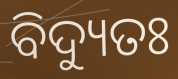
ବିଦ୍ୟୁତଃ